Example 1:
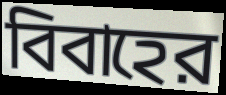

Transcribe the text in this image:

বিবাহের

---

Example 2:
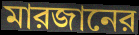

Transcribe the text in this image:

মারজানের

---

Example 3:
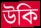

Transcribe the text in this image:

উকি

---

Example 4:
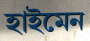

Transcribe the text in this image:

হাইমেন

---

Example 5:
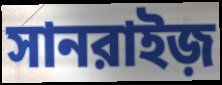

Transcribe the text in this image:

সানরাইজ়